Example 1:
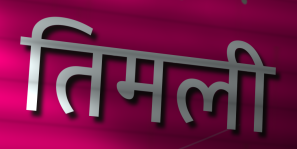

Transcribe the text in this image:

तिमली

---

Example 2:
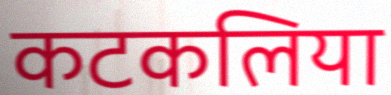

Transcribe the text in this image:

कटकलिया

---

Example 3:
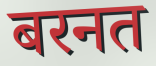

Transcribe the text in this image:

बरनत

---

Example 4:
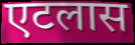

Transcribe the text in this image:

एटलास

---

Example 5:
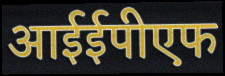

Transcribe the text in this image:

आईईपीएफ